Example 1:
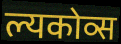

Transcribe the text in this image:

ल्यकोव्स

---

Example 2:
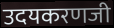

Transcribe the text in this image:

उदयकरणजी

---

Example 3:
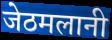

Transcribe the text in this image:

जेठमलानी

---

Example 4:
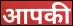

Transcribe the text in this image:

आपकी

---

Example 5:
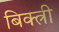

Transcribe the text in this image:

बिक्त्री